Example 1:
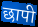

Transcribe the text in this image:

छापी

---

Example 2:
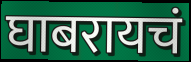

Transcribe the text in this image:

घाबरायचं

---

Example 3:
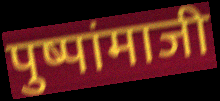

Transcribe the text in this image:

पुष्पांमाजी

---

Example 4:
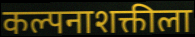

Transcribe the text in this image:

कल्पनाशक्तीला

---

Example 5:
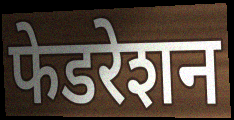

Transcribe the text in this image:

फेडरेशन